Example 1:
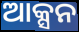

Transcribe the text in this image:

ଆକ୍ସନ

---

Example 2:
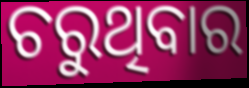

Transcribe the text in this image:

ଚରୁଥିବାର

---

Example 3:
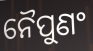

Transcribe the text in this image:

ନୈପୁଣଂ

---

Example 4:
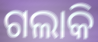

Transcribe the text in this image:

ଗଲାକି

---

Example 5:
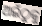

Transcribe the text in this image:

ଅଇଁଠୁକୁ